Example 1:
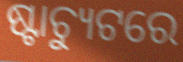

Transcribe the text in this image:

ଷ୍ଟାଚ୍ୟୁଟରେ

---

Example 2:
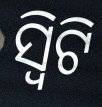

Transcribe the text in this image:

ସ୍ୱିଟି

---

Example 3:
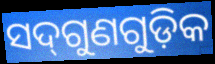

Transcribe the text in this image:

ସଦ୍‌ଗୁଣଗୁଡ଼ିକ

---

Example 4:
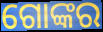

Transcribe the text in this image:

ଗୋଙ୍କର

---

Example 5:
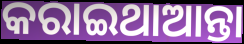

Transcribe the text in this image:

କରାଇଥାଆନ୍ତା